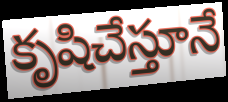
కృషిచేస్తూనే